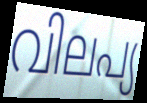
വിലപ്യ